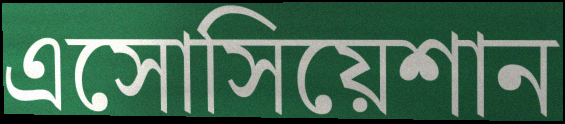
এসোসিয়েশান